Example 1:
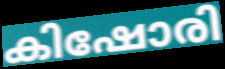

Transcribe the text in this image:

കിഷോരി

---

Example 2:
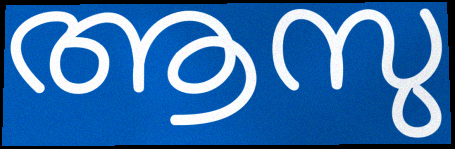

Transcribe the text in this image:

ആസു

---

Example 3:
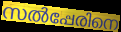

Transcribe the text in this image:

സൽപ്പേരിനെ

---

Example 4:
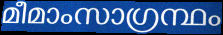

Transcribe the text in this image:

മീമാംസാഗ്രന്ഥം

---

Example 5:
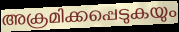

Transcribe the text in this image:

അക്രമിക്കപ്പെടുകയും